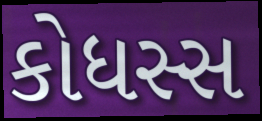
કોધસ્સ